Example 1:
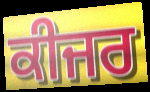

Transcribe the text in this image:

ਕੀਜਰ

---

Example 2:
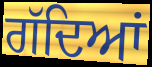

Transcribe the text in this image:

ਗੱਦਿਆਂ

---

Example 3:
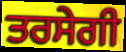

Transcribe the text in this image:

ਤਰਸੇਗੀ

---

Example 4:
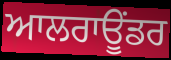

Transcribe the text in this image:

ਆਲਰਾਊਂਡਰ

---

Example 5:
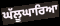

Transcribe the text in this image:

ਘੱਲੂਘਾਰਿਆ